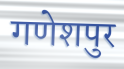
गणेशपुर